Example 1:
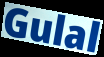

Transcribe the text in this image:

Gulal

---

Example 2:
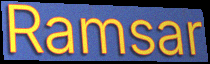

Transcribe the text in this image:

Ramsar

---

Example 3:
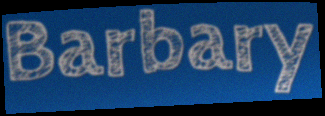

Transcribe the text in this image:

Barbary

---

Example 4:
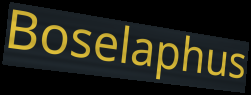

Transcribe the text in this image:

Boselaphus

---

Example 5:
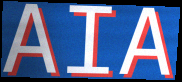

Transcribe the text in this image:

AIA